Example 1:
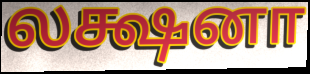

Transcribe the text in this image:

லக்ஷனா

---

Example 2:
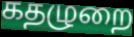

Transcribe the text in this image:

கதழுறை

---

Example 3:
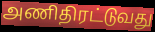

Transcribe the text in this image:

அணிதிரட்டுவது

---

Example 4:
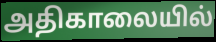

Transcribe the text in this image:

அதிகாலையில்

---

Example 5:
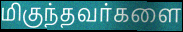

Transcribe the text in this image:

மிகுந்தவர்களை